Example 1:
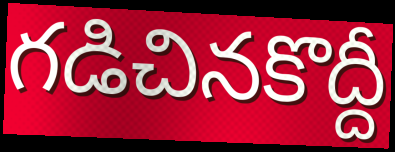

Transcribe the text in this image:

గడిచినకొద్దీ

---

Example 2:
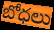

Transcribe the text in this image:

బోధలు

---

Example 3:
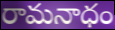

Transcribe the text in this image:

రామనాధం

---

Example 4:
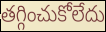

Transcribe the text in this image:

తగ్గించుకోలేదు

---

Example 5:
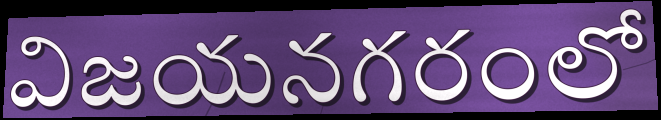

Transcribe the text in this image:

విజయనగరంలో